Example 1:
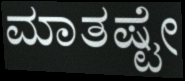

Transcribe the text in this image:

ಮಾತಷ್ಟೇ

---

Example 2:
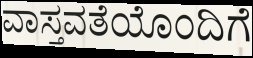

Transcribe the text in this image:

ವಾಸ್ತವತೆಯೊಂದಿಗೆ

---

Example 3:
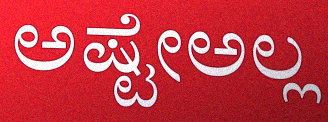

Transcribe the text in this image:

ಅಷ್ಟೇಅಲ್ಲ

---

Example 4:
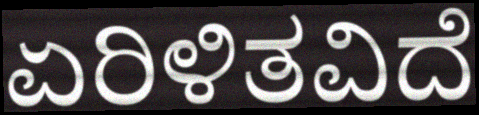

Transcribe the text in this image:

ಏರಿಳಿತವಿದೆ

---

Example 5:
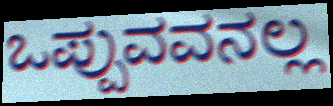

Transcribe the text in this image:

ಒಪ್ಪುವವನಲ್ಲ